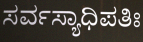
ಸರ್ವಸ್ಯಾಧಿಪತಿಃ